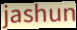
jashun